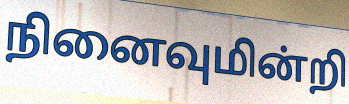
நினைவுமின்றி